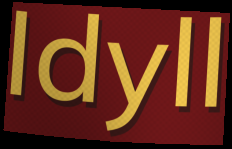
Idyll